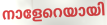
നാളേറെയായി